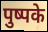
पुष्पके